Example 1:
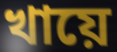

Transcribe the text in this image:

খায়ে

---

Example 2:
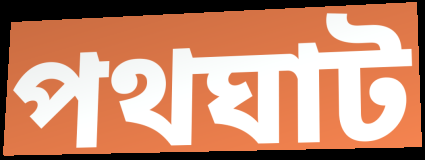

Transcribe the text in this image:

পথঘাট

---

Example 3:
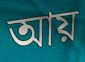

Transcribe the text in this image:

আয়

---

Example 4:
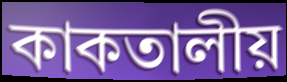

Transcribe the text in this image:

কাকতালীয়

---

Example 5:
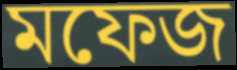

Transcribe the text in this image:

মফেজ